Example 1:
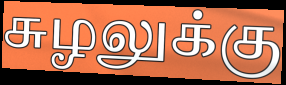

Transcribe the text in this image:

சுழலுக்கு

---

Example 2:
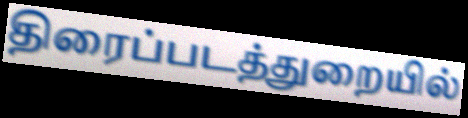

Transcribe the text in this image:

திரைப்படத்துறையில்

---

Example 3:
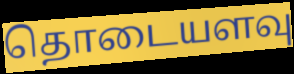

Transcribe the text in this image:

தொடையளவு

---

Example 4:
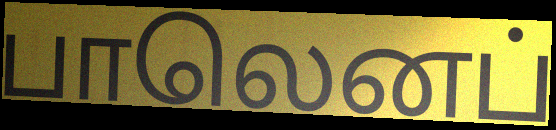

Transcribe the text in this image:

பாலெனப்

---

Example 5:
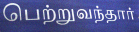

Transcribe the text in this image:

பெற்றுவந்தார்